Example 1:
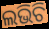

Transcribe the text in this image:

ଲଭିଚି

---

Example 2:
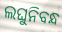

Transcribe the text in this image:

ଲଘୁନିବନ୍ଧ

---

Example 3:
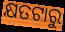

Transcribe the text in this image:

କ୍ଷତଟାରୁ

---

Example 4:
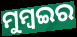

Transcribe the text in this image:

ମୁମ୍ବଇର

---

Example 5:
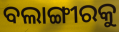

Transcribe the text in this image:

ବଲାଙ୍ଗୀରକୁ